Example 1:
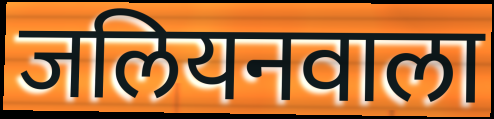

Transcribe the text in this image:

जलियनवाला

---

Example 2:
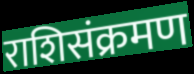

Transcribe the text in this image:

राशिसंक्रमण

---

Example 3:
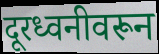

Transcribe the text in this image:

दूरध्वनीवरून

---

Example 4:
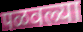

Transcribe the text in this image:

पळवल्या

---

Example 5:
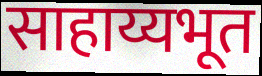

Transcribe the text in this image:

साहाय्यभूत